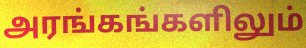
அரங்கங்களிலும்